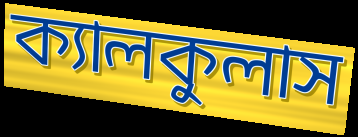
ক্যালকুলাস